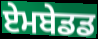
ਏਮਬੇਡਡ